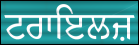
ਟਰਾਇਲਜ਼